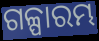
ଗଳ୍ପାରମ୍ଭ